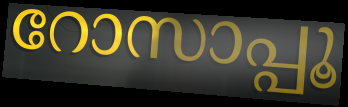
റോസാപ്പൂ